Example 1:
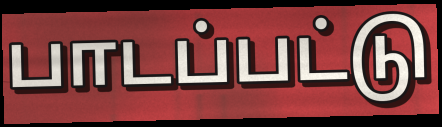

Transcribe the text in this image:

பாடப்பட்டு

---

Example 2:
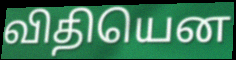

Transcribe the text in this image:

விதியென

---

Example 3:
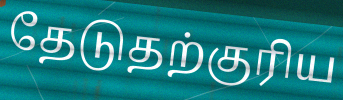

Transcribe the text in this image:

தேடுதற்குரிய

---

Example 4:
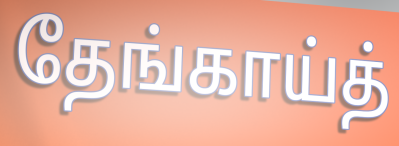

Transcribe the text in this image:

தேங்காய்த்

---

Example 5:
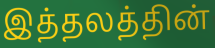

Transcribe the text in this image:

இத்தலத்தின்